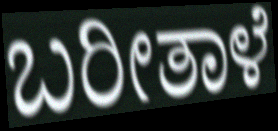
ಬರೀತಾಳೆ